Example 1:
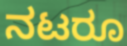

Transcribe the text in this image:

ನಟರೂ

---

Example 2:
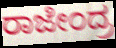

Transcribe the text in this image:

ರಾಜೇಂದ್ರ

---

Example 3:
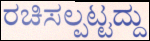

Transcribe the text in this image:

ರಚಿಸಲ್ಪಟ್ಟದ್ದು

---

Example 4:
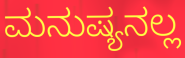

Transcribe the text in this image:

ಮನುಷ್ಯನಲ್ಲ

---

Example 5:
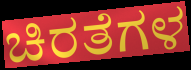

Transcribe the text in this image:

ಚಿರತೆಗಳ